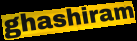
ghashiram